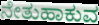
ನೇತುಹಾಕುವ